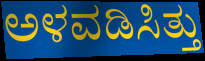
ಅಳವಡಿಸಿತ್ತು